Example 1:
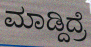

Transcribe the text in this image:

ಮಾಡ್ದಿದ್ರೆ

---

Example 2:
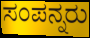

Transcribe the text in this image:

ಸಂಪನ್ನರು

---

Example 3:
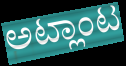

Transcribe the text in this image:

ಅಟ್ಲಾಂಟ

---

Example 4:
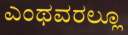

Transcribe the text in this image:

ಎಂಥವರಲ್ಲೂ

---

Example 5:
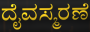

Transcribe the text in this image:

ದೈವಸ್ಮರಣೆ